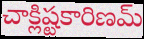
చాక్లిష్టకారిణమ్